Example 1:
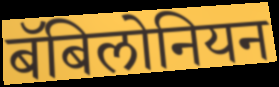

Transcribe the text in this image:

बॅबिलोनियन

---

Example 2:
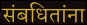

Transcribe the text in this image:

संबधितांना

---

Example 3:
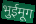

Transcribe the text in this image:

भुईमूग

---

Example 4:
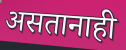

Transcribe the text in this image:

असतानाही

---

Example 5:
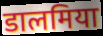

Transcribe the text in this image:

डालमिया